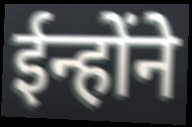
ईन्होंने